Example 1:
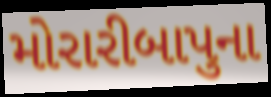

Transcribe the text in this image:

મોરારીબાપુના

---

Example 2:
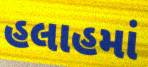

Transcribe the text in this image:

હલાહમાં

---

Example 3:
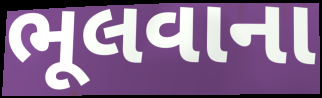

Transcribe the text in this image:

ભૂલવાના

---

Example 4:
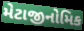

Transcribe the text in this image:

મેટાજીનોમિક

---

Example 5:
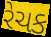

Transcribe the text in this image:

રેચક